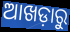
ଆଖଡ଼ାରୁ